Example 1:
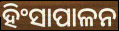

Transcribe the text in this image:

ହିଂସାପାଳନ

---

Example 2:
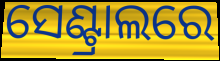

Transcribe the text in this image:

ସେଣ୍ଟ୍ରାଲରେ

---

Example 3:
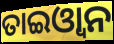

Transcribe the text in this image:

ତାଇଓ୍ୱାନ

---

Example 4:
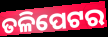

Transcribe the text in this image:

ତଳିପେଟର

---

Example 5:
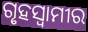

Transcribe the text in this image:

ଗୃହସ୍ୱାମୀର